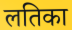
लतिका